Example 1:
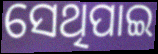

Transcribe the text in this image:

ସେଥିପାଇ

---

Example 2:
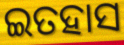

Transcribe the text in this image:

ଇତହାସ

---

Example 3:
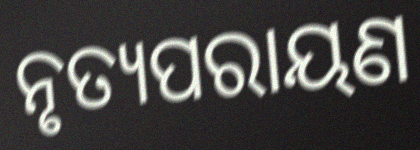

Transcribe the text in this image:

ନୃତ୍ୟପରାୟଣ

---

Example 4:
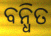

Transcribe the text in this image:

ବନ୍ଧିତ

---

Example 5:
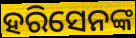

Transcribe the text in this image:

ହରିସେନଙ୍କ